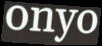
onyo